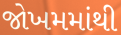
જોખમમાંથી